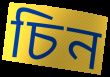
চিন